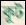
কূট